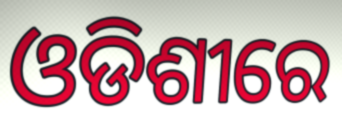
ଓଡିଶୀରେ